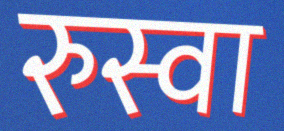
रुस्वा